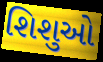
શિશુઓ